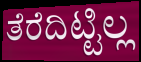
ತೆರೆದಿಟ್ಟಿಲ್ಲ